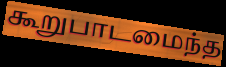
கூறுபாடமைந்த